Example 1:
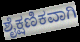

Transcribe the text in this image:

ಶೈಕ್ಷಣಿಕವಾಗಿ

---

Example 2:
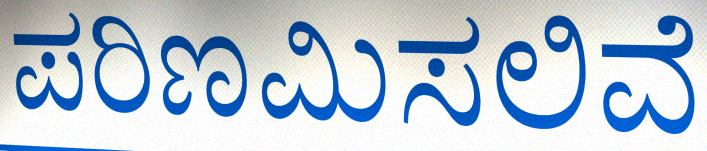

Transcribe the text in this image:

ಪರಿಣಮಿಸಲಿವೆ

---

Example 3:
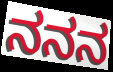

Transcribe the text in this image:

ನನನ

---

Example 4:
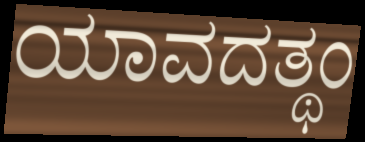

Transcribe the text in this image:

ಯಾವದತ್ಥಂ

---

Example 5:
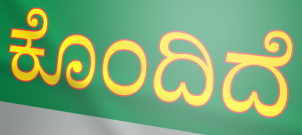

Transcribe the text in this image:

ಕೊಂದಿದೆ